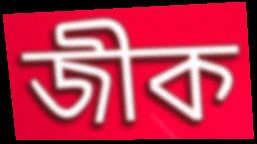
জীক